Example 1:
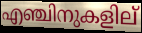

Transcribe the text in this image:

എഞ്ചിനുകളില്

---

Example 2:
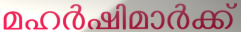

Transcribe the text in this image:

മഹർഷിമാർക്ക്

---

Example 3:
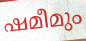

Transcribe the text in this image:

ഷമീമും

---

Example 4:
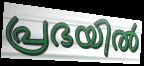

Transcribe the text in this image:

പ്രഭയിൽ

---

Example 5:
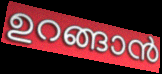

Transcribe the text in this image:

ഉറങ്ങാൻ